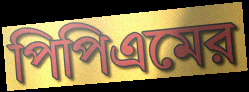
পিপিএমের